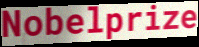
Nobelprize